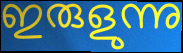
ഇരുളുന്നു